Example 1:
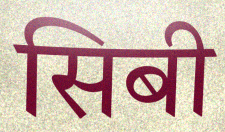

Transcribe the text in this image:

सिबी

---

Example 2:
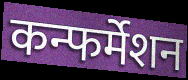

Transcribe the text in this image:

कन्‍फर्मेशन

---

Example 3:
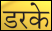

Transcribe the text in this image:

डरके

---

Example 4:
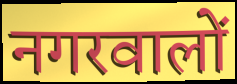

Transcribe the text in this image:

नगरवालों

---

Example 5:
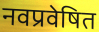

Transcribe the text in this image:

नवप्रवेषित